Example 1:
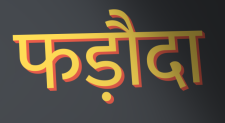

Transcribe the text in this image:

फड़ौदा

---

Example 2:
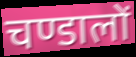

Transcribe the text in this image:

चण्डालों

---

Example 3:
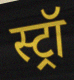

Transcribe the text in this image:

स्ट्रॉ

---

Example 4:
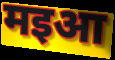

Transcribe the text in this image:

मइआ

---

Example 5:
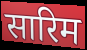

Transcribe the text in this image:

सारिम